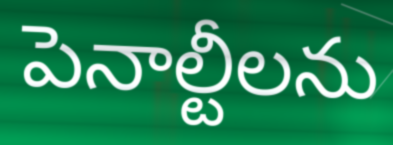
పెనాల్టీలను